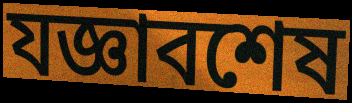
যজ্ঞাবশেষ